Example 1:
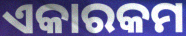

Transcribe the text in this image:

ଏକାରକମ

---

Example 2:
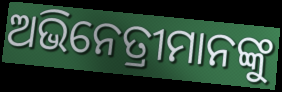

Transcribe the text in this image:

ଅଭିନେତ୍ରୀମାନଙ୍କୁ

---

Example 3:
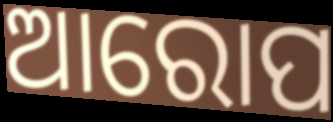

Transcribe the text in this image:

ଆରୋପ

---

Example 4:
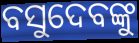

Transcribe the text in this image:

ବସୁଦେବଙ୍କୁ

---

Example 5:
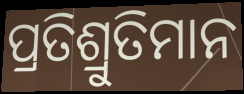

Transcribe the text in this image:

ପ୍ରତିଶ୍ରୁତିମାନ